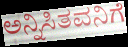
ಅನ್ನಿಸಿತವನಿಗೆ